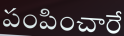
పంపించారే